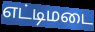
எட்டிமடை